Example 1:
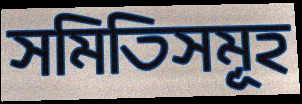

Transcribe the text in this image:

সমিতিসমূহ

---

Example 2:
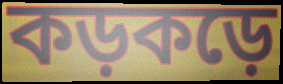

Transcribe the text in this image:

কড়কড়ে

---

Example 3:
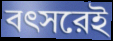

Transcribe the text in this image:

বৎসরেই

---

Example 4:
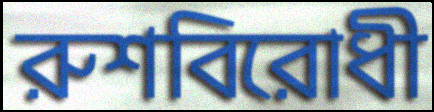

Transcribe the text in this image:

রুশবিরোধী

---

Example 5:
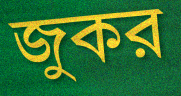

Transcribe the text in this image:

জুকর